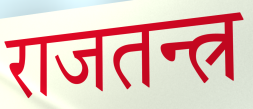
राजतन्त्र